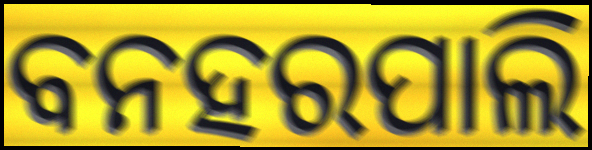
ବନହରପାଲି